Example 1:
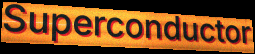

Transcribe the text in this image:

Superconductor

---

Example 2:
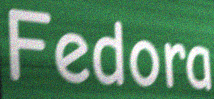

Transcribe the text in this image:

Fedora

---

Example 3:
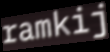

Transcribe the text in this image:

ramkij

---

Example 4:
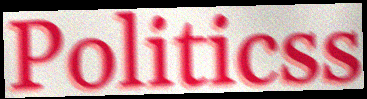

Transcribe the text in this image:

Politicss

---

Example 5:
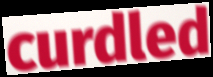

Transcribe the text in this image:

curdled